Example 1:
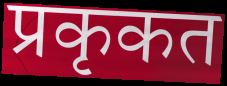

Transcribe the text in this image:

प्रकृकत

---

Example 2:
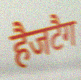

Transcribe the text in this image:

हैजटैग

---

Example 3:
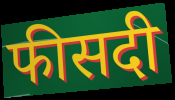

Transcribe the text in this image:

फीसदी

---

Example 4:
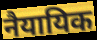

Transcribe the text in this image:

नैयायिक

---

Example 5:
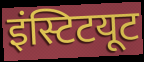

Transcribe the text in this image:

इंस्टिटयूट